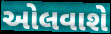
ઓલવાશે